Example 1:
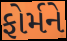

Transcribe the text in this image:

ફોર્મને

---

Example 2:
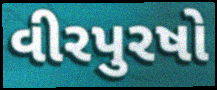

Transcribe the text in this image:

વીરપુરષો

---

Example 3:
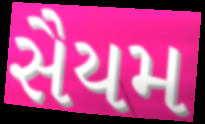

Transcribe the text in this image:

સૈયમ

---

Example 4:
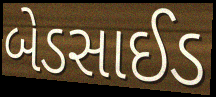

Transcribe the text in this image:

બેડસાઈડ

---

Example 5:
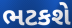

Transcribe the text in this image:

ભટકશે